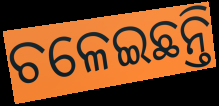
ଚଳେଇଛନ୍ତି